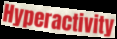
Hyperactivity